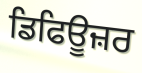
ਡਿਫਿਊਜ਼ਰ